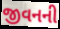
જીવનની